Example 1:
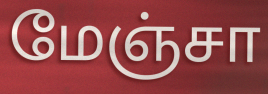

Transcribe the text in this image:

மேஞ்சா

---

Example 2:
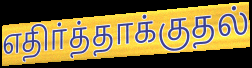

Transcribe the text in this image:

எதிர்த்தாக்குதல்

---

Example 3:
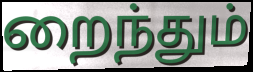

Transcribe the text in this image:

றைந்தும்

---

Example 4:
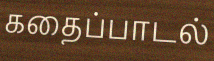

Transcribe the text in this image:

கதைப்பாடல்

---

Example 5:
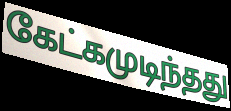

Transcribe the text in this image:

கேட்கமுடிந்தது